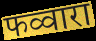
फव्वारा